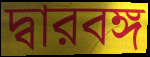
দ্বারবঙ্গ